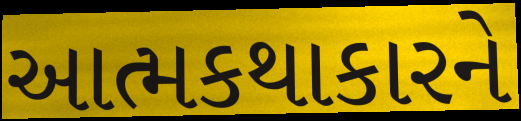
આત્મકથાકારને